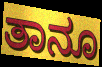
ತಾನೂ